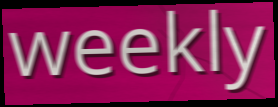
weekly